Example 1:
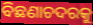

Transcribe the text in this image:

ବିଛଣାଚଦରକୁ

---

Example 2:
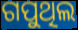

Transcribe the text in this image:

ଗପୁଥିଲ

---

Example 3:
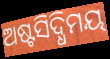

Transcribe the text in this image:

ଅଷ୍ଟସିଦ୍ଧିମୟ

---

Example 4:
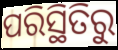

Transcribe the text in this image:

ପରିସ୍ଥିତିରୁ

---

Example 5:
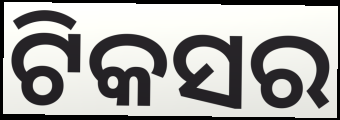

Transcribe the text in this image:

ଟିକସର